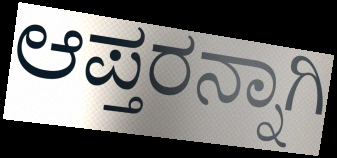
ಆಪ್ತರನ್ನಾಗಿ